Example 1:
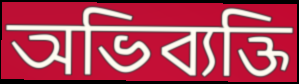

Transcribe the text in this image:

অভিব্যক্তি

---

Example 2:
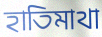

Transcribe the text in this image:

হাতিমাথা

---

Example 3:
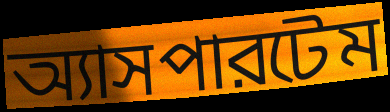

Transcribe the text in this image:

অ্যাসপারটেম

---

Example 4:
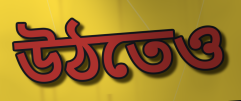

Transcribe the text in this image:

উঠতেও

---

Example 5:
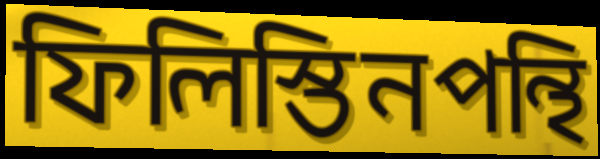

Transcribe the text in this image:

ফিলিস্তিনপন্থি